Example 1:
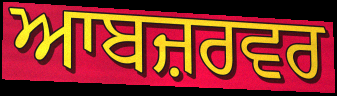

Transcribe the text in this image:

ਆਬਜ਼ਰਵਰ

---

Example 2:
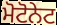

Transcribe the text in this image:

ਮੋਟੋਨੇਟ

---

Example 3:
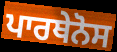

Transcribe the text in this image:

ਪਾਰਥੇਨੋਸ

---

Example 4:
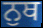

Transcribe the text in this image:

ਨੁਥ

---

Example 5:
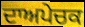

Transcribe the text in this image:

ਦਾਅਪੇਚਕ